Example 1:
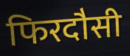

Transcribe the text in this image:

फिरदौसी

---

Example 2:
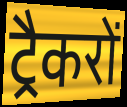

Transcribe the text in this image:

ट्रैकरों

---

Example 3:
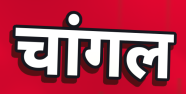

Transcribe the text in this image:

चांगल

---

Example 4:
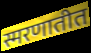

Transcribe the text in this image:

स्मरणातीत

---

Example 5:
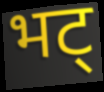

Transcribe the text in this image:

भट्